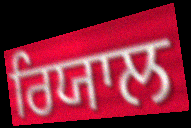
ਰਿਯਾਲ